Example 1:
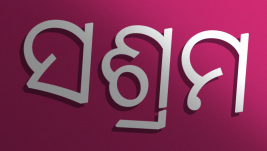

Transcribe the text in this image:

ସଶ୍ରମ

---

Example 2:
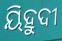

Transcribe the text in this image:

ୟିହୁଦୀ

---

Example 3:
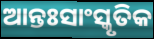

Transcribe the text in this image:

ଆନ୍ତଃସାଂସ୍କୃତିକ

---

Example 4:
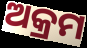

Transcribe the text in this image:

ଅକ୍ରମ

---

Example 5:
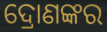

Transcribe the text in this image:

ଦ୍ରୋଣଙ୍କର